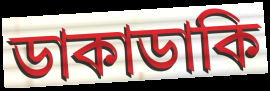
ডাকাডাকি